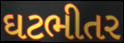
ઘટભીતર